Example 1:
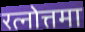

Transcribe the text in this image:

रत्नोत्तमा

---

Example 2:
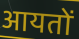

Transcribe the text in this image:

आयतों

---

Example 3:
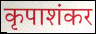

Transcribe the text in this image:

कृपाशंकर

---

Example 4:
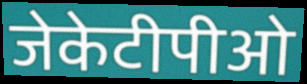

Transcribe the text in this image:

जेकेटीपीओ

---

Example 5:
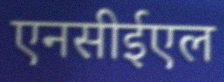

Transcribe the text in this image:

एनसीईएल